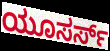
ಯೂಸರ್ಸ್